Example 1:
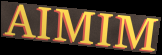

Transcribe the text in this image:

AIMIM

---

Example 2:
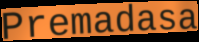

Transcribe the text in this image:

Premadasa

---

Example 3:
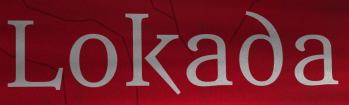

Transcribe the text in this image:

Lokada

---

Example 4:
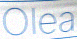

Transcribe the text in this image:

Olea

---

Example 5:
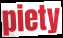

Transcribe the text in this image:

piety